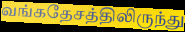
வங்கதேசத்திலிருந்து